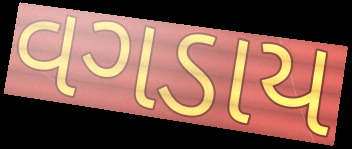
વગડાય